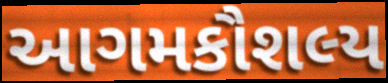
આગમકૌશલ્ય